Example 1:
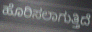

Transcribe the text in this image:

ಹೊರಿಸಲಾಗುತ್ತಿದೆ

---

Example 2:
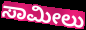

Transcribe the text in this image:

ಸಾಮೀಲು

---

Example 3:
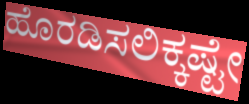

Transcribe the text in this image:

ಹೊರಡಿಸಲಿಕ್ಕಷ್ಟೇ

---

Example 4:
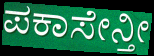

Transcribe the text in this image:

ಪಕಾಸೇನ್ತೀ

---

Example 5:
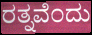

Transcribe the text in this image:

ರತ್ನವೆಂದು